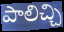
పాలిచ్చి